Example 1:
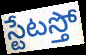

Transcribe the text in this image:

స్టేటస్తో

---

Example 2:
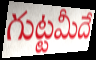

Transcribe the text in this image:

గుట్టమీదే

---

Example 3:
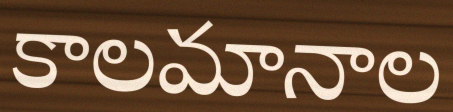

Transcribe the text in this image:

కాలమానాల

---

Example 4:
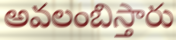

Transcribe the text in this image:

అవలంబిస్తారు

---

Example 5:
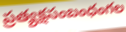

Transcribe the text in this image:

ప్రత్యక్షసంబంధంగల